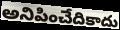
అనిపించేదికాదు